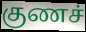
குணச்